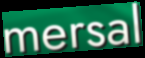
mersal